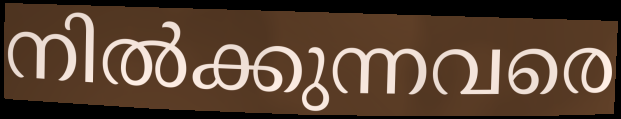
നിൽക്കുന്നവരെ